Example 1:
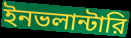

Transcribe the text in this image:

ইনভলান্টারি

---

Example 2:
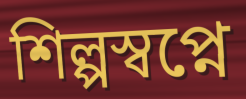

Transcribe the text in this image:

শিল্পস্বপ্নে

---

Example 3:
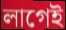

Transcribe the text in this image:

লাগেই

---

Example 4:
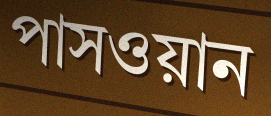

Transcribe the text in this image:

পাসওয়ান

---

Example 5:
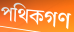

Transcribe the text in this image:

পথিকগণ